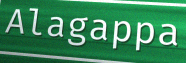
Alagappa